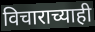
विचाराच्याही